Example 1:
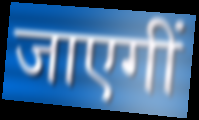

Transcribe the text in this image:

जाएगीं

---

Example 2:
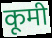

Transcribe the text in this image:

कूमी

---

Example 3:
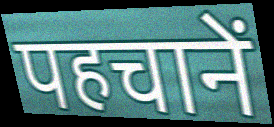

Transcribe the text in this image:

पहचानें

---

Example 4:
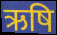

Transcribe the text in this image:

ऋषि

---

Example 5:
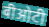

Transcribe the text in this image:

बीओटी